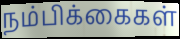
நம்பிக்கைகள்